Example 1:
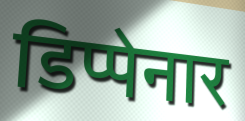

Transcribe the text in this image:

डिप्पेनार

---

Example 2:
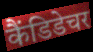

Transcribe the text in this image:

कैंडिडेचर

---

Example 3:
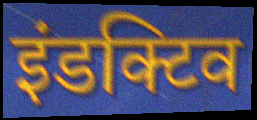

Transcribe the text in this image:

इंडक्टिव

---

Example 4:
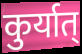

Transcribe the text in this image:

कुर्यात्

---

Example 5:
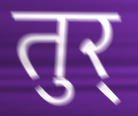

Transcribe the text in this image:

तुर्